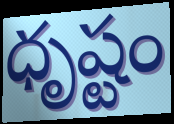
ధృష్టం